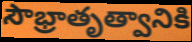
సౌభ్రాతృత్వానికి